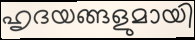
ഹൃദയങ്ങളുമായി